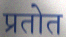
प्रतोत